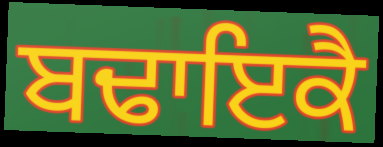
ਬਢਾਇਕੈ